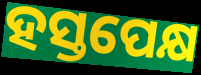
ହସ୍ତପେକ୍ଷ